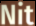
Nit